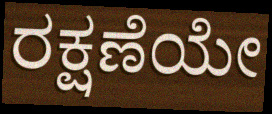
ರಕ್ಷಣೆಯೇ